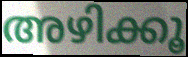
അഴിക്കൂ